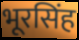
भूरसिंह